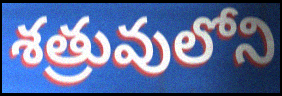
శత్రువులోని